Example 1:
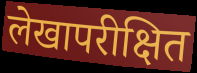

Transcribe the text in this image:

लेखापरीक्षित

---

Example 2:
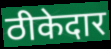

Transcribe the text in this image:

ठीकेदार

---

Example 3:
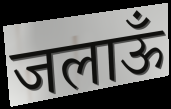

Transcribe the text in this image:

जलाऊँ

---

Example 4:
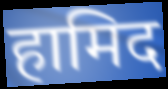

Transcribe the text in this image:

हामिद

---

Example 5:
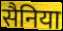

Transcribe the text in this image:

सैनिया